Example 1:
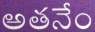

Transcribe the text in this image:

అతనేం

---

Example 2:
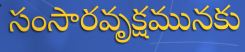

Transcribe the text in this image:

సంసారవృక్షమునకు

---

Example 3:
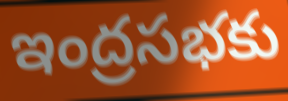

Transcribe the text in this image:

ఇంద్రసభకు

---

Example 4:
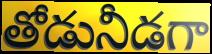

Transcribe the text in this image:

తోడునీడగా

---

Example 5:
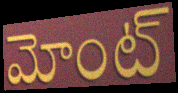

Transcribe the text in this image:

మోంట్